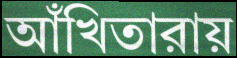
আঁখিতারায়